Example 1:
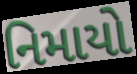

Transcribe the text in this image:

નિમાયો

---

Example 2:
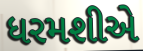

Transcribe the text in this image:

ધરમશીએ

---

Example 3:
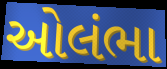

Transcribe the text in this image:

ઓલંભા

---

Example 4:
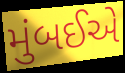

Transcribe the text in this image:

મુંબઈએ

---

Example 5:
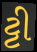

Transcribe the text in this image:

ટ્ટી